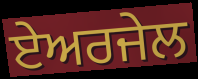
ਏਅਰਜੇਲ